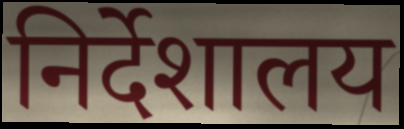
निर्देशालय